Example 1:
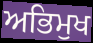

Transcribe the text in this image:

ਅਭਿਮੁਖ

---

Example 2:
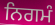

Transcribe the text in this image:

ਨਿਗਮੰ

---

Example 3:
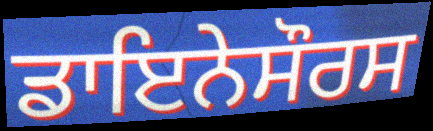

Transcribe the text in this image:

ਡਾਇਨੇਸੌਰਸ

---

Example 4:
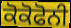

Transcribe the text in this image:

ਕੋਕੋਫੋਨੀ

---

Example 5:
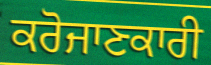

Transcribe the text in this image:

ਕਰੋਜਾਣਕਾਰੀ